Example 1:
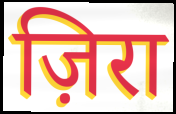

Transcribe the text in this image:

ज़िरा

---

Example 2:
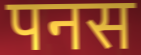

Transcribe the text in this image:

पनस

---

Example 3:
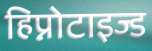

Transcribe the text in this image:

हिप्नोटाइज्ड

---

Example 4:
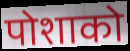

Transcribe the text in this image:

पोशाको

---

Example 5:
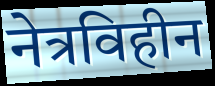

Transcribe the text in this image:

नेत्रविहीन